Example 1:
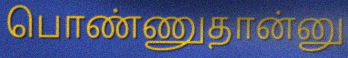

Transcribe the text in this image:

பொண்ணுதான்னு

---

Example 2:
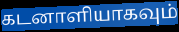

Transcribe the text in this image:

கடனாளியாகவும்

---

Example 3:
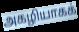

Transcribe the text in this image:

அகழியாகக்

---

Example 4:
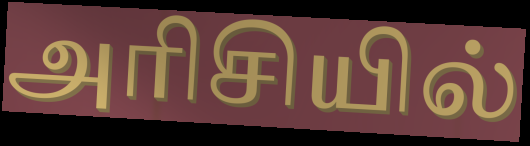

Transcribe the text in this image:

அரிசியில்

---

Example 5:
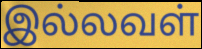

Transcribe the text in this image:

இல்லவள்